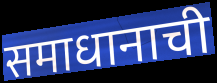
समाधानाची